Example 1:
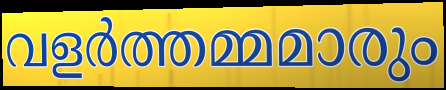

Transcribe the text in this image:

വളർത്തമ്മമാരും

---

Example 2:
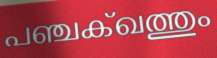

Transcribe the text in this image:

പഞ്ചക്ഖത്തും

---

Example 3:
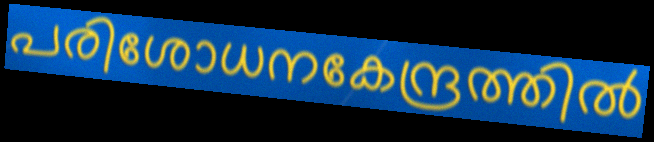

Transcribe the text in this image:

പരിശോധനകേന്ദ്രത്തിൽ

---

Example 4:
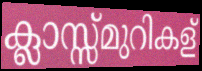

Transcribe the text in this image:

ക്ലാസ്സ്മുറികള്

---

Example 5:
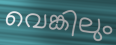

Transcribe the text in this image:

വെങ്കിലും